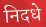
निदधे